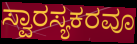
ಸ್ವಾರಸ್ಯಕರವೂ